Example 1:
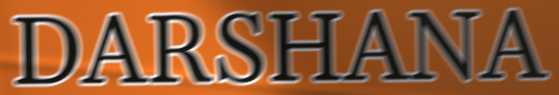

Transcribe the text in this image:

DARSHANA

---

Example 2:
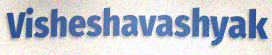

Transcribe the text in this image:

Visheshavashyak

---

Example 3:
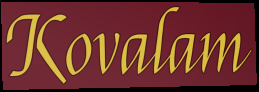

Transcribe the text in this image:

Kovalam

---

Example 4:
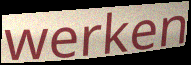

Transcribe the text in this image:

werken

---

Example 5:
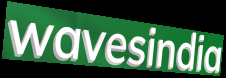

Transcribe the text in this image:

wavesindia